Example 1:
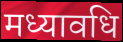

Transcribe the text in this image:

मध्यावधि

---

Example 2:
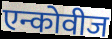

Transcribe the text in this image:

एन्कोवीज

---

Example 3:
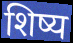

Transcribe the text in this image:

शिष्य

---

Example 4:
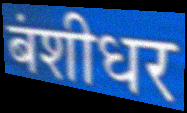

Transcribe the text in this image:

बंशीधर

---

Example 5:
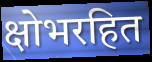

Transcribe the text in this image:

क्षोभरहित